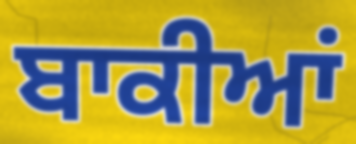
ਬਾਕੀਆਂ